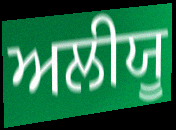
ਅਲੀਯੂ